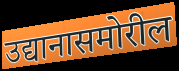
उद्यानासमोरील